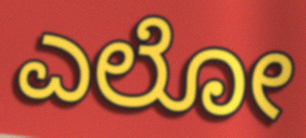
ಎಲೋ